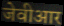
जेवीआर